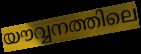
യൗവ്വനത്തിലെ